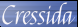
Cressida